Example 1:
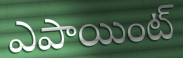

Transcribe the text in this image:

ఎపాయింట్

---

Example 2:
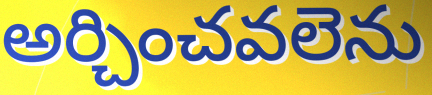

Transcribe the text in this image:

అర్చించవలెను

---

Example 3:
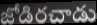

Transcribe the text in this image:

జోడిరచాడు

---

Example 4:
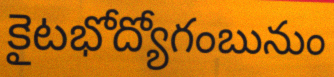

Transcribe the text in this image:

కైటభోద్యోగంబునుం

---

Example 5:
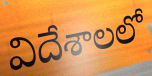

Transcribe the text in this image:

విదేశాలలో